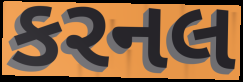
કરનલ